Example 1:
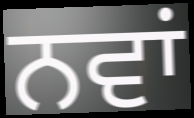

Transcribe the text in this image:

ਨਵਾਂ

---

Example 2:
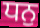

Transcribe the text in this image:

ਧਨੁ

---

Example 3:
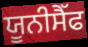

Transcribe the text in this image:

ਯੂਨੀਸੈੱਫ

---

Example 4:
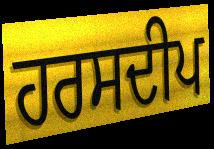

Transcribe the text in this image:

ਹਰਸਦੀਪ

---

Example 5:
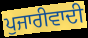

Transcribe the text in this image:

ਪੁਜਾਰੀਵਾਦੀ